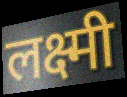
लक्ष्‍मी